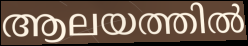
ആലയത്തിൽ